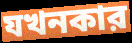
যখনকার